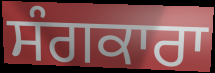
ਸੰਗਕਾਰਾ